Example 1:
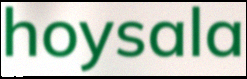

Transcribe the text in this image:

hoysala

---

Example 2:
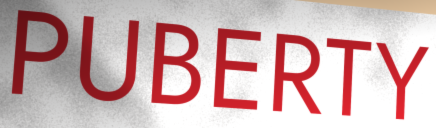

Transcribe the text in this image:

PUBERTY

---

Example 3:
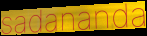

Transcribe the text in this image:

sadananda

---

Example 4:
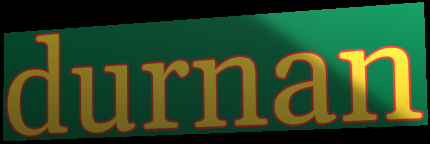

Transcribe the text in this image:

durnan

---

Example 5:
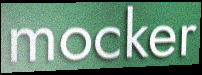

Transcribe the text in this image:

mocker